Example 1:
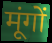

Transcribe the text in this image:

मूंगों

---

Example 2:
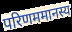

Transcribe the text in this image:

परिणममानस्य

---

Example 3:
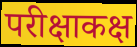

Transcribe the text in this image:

परीक्षाकक्ष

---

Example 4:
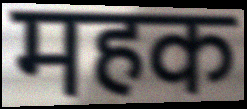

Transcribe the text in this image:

महक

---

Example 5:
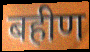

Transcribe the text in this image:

बहीण